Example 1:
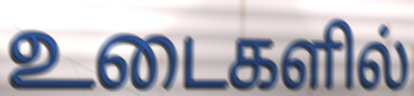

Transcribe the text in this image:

உடைகளில்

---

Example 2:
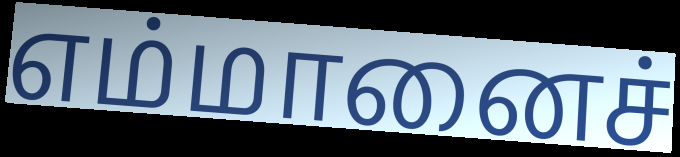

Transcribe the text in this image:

எம்மானைச்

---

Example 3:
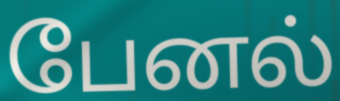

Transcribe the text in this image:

பேனல்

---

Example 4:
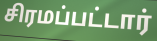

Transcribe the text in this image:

சிரமப்பட்டார்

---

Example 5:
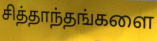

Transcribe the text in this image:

சித்தாந்தங்களை